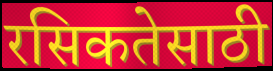
रसिकतेसाठी